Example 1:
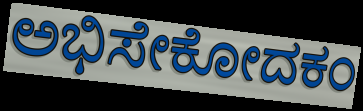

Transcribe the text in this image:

ಅಭಿಸೇಕೋದಕಂ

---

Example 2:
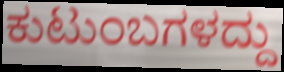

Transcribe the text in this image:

ಕುಟುಂಬಗಳದ್ದು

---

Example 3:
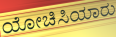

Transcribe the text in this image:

ಯೋಚಿಸಿಯಾರು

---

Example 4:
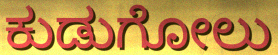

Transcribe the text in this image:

ಕುಡುಗೋಲು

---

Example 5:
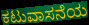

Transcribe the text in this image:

ಕಟುವಾಸನೆಯ